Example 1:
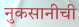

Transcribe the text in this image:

नुकसानीची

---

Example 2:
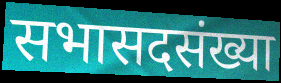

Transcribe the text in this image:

सभासदसंख्या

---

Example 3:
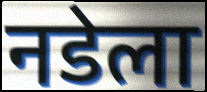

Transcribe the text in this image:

नडेला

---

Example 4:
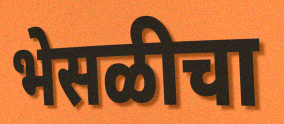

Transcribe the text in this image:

भेसळीचा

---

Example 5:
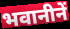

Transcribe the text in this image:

भवानीनें